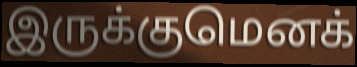
இருக்குமெனக்